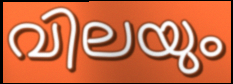
വിലയും